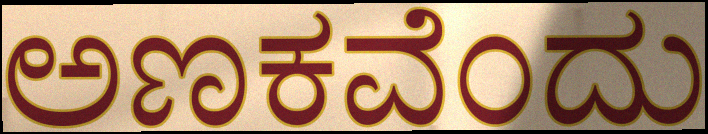
ಅಣಕವೆಂದು